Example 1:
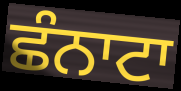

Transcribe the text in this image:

ਛੰਨਾਟਾ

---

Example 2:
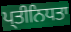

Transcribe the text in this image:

ਪ੍ਤੀਨਿਧਤਾ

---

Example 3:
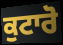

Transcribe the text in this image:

ਕੁਟਾਰੋ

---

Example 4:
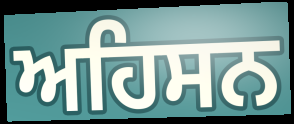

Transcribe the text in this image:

ਅਹਿਸਨ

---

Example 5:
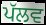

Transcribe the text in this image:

ਪੱਲਵ